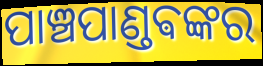
ପାଞ୍ଚପାଣ୍ଡଵଙ୍କର